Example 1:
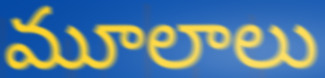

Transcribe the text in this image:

మూలాలు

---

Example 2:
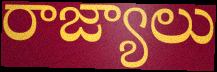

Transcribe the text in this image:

రాజ్యాలు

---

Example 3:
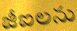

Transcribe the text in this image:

జీఐలను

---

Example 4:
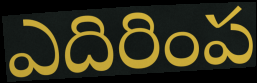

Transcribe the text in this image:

ఎదిరింప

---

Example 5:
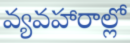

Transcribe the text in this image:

వ్యవహారాల్లో